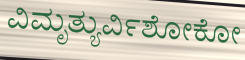
ವಿಮೃತ್ಯುರ್ವಿಶೋಕೋ